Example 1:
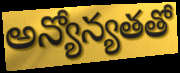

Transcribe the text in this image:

అన్యోన్యతతో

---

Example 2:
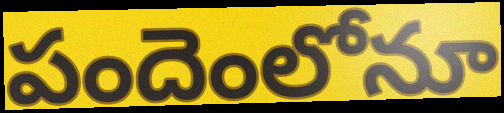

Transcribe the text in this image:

పందెంలోనూ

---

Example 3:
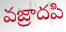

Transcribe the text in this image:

వజ్రాదపి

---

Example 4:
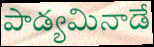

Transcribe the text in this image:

పాడ్యమినాడే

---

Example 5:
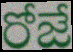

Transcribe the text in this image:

రోజే